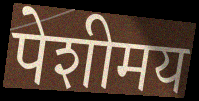
पेशीमय